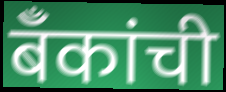
बॅँकांची